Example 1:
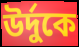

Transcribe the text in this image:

উর্দুকে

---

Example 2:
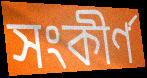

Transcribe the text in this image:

সংকীর্ণ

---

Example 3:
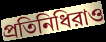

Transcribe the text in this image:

প্রতিনিধিরাও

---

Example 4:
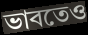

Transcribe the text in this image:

ভাবতেও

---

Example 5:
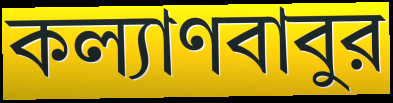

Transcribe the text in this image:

কল্যাণবাবুর